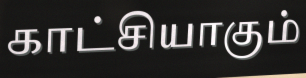
காட்சியாகும்